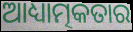
ଆଧ୍ୟାତ୍ମକତାର